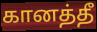
கானத்தீ